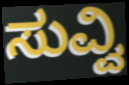
ಸುವ್ವಿ